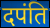
दपंति